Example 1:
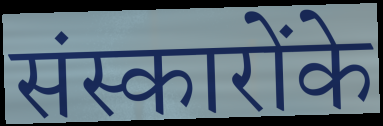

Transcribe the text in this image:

संस्कारोंके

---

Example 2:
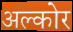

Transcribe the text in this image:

अल्कोर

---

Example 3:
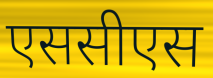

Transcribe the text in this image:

एससीएस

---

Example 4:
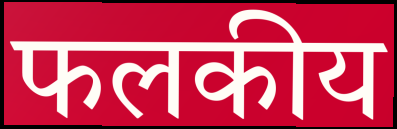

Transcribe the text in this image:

फलकीय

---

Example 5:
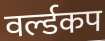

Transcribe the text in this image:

वर्ल्‍डकप